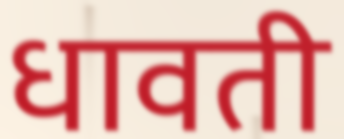
धावती